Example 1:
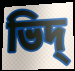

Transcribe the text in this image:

ভিদ্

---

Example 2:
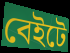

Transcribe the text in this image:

বেইটে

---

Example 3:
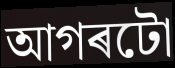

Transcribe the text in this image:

আগৰটো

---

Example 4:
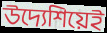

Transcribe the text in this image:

উদ্যেশিয়েই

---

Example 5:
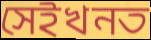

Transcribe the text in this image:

সেইখনত